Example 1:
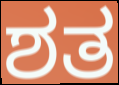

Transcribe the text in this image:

ಶತ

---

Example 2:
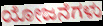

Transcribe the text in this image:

ಯೋಜನೆಗಳು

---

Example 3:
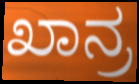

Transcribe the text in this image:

ಖಾನ್ರ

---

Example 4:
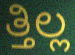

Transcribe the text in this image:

ತ್ತಿಲ್ಲ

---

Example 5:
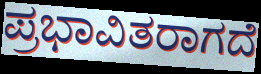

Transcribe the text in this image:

ಪ್ರಭಾವಿತರಾಗದೆ